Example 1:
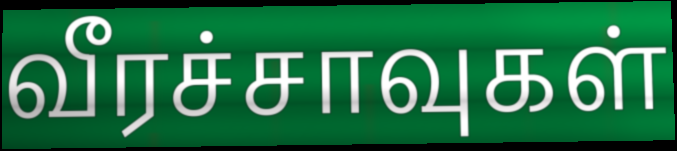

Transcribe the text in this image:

வீரச்சாவுகள்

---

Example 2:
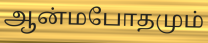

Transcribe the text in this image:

ஆன்மபோதமும்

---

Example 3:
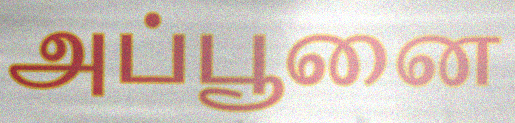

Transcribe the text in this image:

அப்பூனை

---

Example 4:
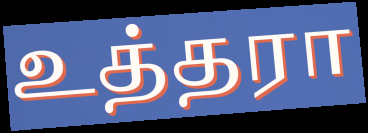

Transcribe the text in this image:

உத்தரா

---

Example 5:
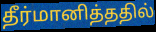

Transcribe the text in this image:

தீர்மானித்ததில்